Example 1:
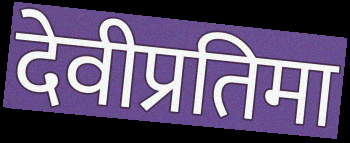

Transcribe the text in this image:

देवीप्रतिमा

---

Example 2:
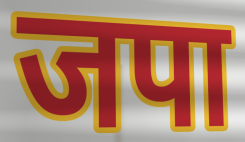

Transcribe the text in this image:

जपा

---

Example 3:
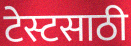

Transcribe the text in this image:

टेस्टसाठी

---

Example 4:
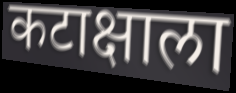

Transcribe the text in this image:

कटाक्षाला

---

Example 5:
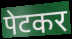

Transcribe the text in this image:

पेटकर